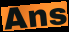
Ans